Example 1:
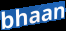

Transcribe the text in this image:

bhaan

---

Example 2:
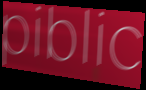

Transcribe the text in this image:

piblic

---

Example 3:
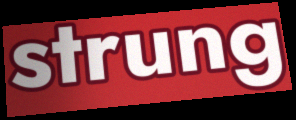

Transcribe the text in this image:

strung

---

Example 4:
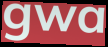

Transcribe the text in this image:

gwa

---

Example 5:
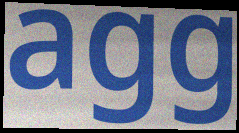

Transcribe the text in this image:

agg